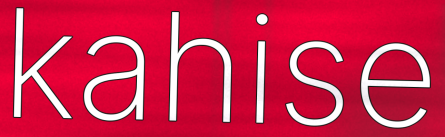
kahise